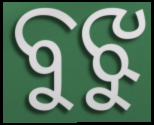
ବୁଝୁ